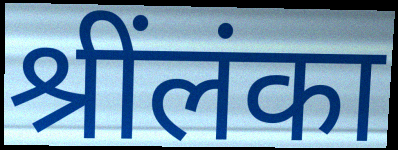
श्रींलंका